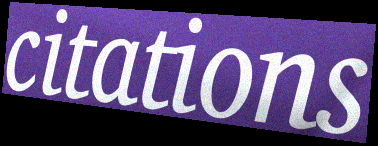
citations